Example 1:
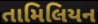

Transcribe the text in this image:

તામિલિયન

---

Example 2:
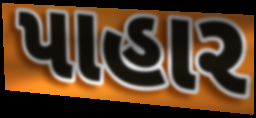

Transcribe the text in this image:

પાહાર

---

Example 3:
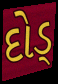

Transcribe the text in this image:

દોડ્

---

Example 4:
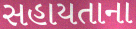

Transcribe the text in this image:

સહાયતાના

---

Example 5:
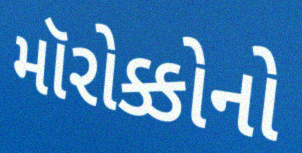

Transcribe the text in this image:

મૉરોક્કોનો